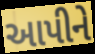
આપીને